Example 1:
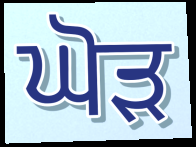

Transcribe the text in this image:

ਘੋੜ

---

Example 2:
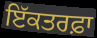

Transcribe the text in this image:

ਇੱਕਤਰਫ਼ਾ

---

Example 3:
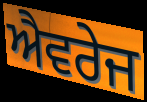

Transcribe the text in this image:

ਐਵਰੇਜ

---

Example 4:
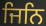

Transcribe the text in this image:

ਜਿਨਿ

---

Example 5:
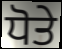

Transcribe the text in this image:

ਧੋਤੇ